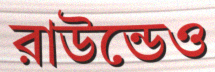
রাউন্ডেও